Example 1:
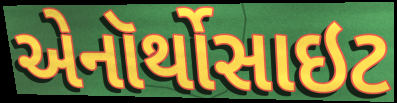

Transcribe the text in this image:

એનૉર્થોસાઇટ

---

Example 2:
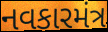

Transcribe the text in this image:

નવકારમંત્ર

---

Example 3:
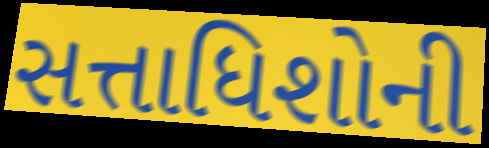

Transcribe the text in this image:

સત્તાધિશોની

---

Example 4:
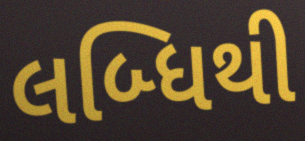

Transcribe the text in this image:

લબ્ધિથી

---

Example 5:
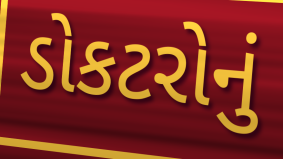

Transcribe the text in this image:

ડોકટરોનું